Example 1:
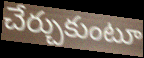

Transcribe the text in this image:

చేర్చుకుంటూ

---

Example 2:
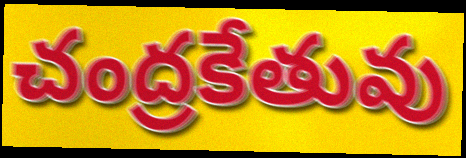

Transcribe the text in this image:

చంద్రకేతువు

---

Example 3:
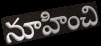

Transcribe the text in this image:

నూహించి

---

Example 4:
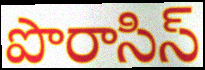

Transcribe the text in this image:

పొరాసిస్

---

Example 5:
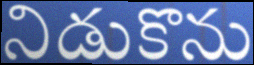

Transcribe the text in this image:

నిడుకొను